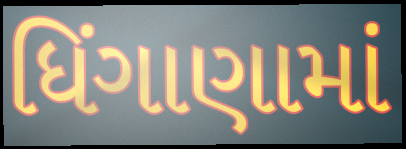
ધિંગાણામાં